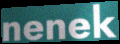
nenek